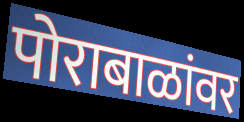
पोराबाळांवर